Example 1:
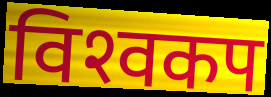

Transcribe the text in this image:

विश्वकप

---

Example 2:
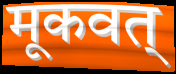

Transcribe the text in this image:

मूकवत्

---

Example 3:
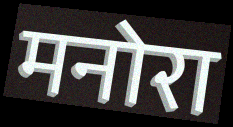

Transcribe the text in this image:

मनोरा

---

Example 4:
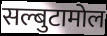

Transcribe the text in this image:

सल्बुटामोल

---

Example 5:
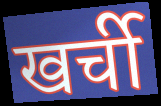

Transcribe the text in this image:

खर्ची